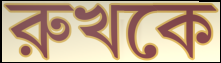
রুখকে